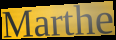
Marthe